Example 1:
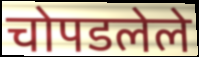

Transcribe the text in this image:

चोपडलेले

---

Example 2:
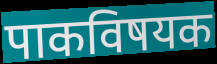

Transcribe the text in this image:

पाकविषयक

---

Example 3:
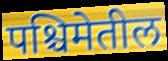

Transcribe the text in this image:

पश्चिमेतील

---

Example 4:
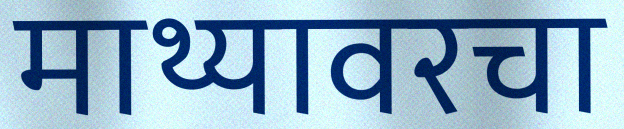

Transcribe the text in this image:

माथ्यावरचा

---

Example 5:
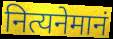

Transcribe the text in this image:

नित्यनेमानं